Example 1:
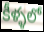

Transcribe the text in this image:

కీళ్ళలో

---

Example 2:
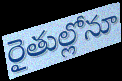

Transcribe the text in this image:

రైతుల్లోనూ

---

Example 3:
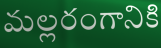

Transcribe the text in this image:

మల్లరంగానికి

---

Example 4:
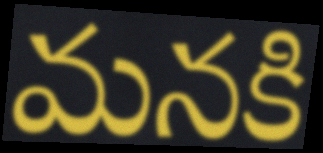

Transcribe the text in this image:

మనకి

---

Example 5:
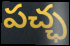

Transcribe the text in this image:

పచ్ఛ